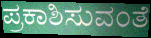
ಪ್ರಕಾಶಿಸುವಂತೆ